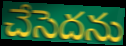
చేసెదను